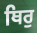
ਥਿਰੁ